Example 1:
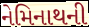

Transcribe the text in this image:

નેમિનાથની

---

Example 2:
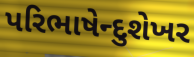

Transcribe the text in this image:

પરિભાષેન્દુશેખર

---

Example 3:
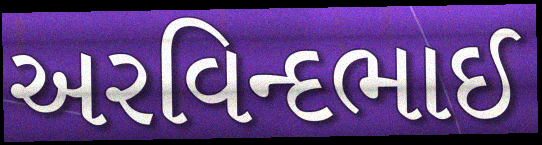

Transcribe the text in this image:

અરવિન્દભાઈ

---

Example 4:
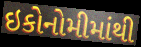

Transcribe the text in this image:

ઇકોનોમીમાંથી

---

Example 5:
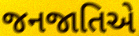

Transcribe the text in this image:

જનજાતિએ